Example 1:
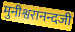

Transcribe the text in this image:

मुनीश्वरानन्दजी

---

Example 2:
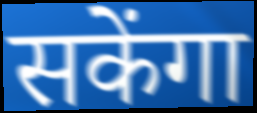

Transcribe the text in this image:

सकेंगा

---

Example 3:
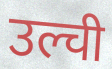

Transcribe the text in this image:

उल्ची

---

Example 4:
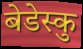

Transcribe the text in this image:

बेडेस्कु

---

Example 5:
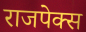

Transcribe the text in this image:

राजपेक्स